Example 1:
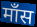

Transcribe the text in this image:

माँस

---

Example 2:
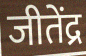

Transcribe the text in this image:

जीतेंद्र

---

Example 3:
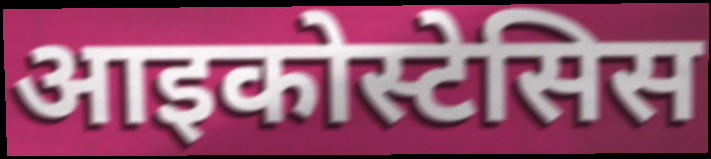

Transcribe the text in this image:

आइकोस्टेसिस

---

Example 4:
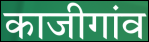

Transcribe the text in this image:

काजीगांव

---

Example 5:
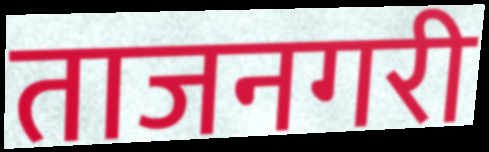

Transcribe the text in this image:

ताजनगरी